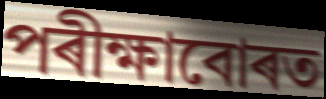
পৰীক্ষাবোৰত